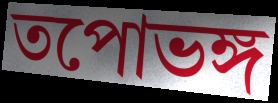
তপোভঙ্গ